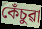
কেঁচুৱা